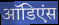
ऑडिएंस